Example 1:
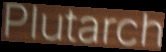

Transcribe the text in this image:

Plutarch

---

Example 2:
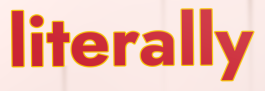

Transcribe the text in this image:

literally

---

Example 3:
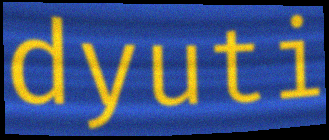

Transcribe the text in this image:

dyuti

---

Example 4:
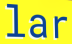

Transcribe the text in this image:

lar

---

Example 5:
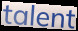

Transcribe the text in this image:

talent